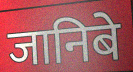
जानिबे